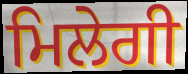
ਮਿਲੇਗੀ